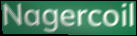
Nagercoil